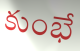
కుంభే